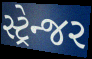
સ્ટ્રેન્જર